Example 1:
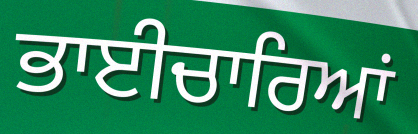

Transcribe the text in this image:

ਭਾਈਚਾਰਿਆਂ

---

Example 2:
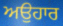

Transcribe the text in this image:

ਅਉਹਾਰ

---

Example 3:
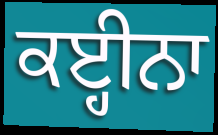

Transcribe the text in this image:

ਕੲ੍ਹੀਨਾ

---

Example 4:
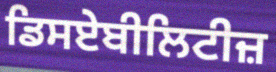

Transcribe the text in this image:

ਡਿਸਏਬੀਲਿਟੀਜ਼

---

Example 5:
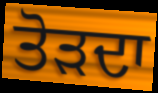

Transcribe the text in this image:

ਤੋੜਦਾ